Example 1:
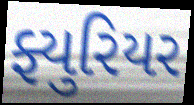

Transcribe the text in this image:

ફ્યુરિયર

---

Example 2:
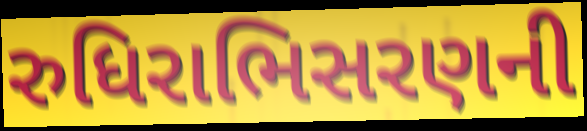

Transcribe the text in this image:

રુધિરાભિસરણની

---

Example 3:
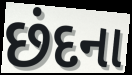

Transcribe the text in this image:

છંદના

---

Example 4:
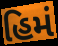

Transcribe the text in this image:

હિમં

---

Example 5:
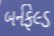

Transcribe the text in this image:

બર્નફેલ્ડ